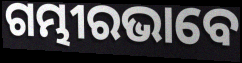
ଗମ୍ଭୀରଭାବେ